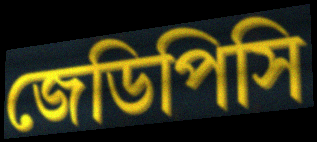
জেডিপিসি